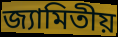
জ্যামিতীয়